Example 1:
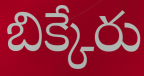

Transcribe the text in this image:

బిక్కేరు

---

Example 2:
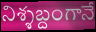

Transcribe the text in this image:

నిశ్శబ్దంగానే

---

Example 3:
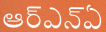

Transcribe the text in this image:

ఆర్ఎన్ఏ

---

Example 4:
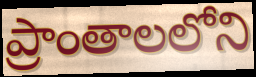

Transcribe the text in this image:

ప్రాంతాలలోని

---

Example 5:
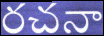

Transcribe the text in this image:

రచనా